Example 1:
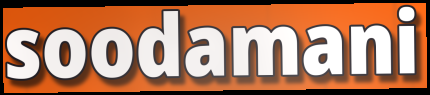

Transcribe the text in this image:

soodamani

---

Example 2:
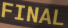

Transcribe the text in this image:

FINAL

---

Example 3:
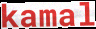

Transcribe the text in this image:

kamal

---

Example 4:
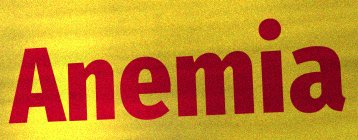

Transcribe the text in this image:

Anemia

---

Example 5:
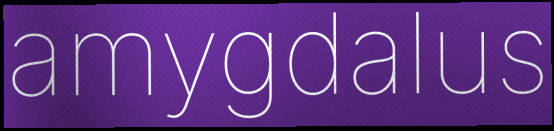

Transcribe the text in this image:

amygdalus